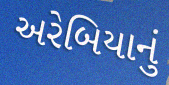
અરેબિયાનું